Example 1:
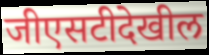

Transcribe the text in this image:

जीएसटीदेखील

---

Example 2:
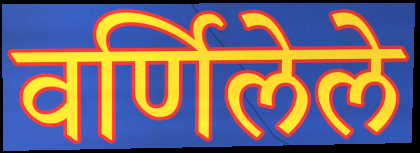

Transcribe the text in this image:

वर्णिलेले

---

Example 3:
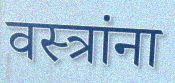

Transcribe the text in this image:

वस्त्रांना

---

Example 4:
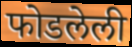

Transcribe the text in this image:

फोडलेली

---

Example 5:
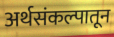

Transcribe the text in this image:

अर्थसंकल्पातून